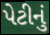
પેટીનું